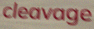
cleavage